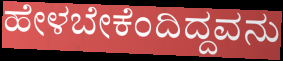
ಹೇಳಬೇಕೆಂದಿದ್ದವನು